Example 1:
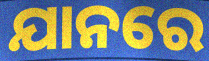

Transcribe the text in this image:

ଯାନରେ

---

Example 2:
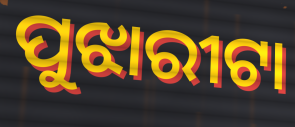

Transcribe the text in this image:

ପୁଝାରୀଟା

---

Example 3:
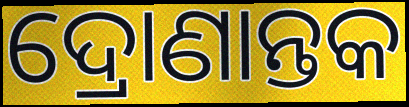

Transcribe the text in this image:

ଦ୍ରୋଣାନ୍ତକ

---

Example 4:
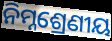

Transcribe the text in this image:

ନିମ୍ନଶ୍ରେଣୀୟ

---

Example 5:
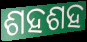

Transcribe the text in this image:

ଶହଶହ